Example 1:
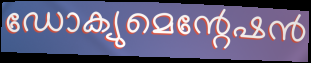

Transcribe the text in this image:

ഡോക്യുമെന്റേഷൻ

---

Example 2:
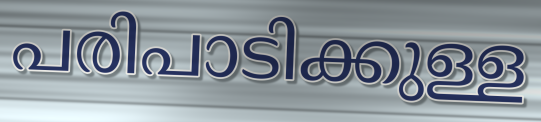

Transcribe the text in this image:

പരിപാടിക്കുള്ള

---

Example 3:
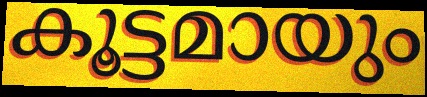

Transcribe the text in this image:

കൂട്ടമായും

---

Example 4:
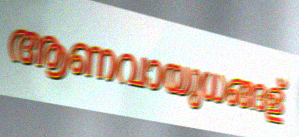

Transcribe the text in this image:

ആണവായുധങ്ങള്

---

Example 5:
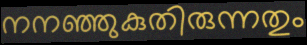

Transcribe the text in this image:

നനഞ്ഞുകുതിരുന്നതും